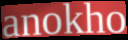
anokho